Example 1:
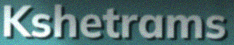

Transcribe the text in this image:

Kshetrams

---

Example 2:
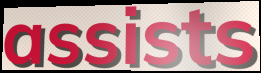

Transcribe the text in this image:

assists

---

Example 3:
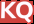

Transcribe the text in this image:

KQ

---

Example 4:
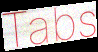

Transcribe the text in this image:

Tabs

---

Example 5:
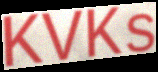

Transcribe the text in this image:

KVKs